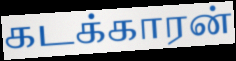
கடக்காரன்